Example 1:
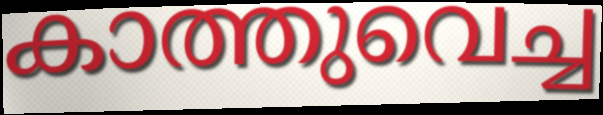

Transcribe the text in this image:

കാത്തുവെച്ച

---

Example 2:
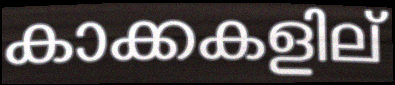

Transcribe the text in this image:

കാക്കകളില്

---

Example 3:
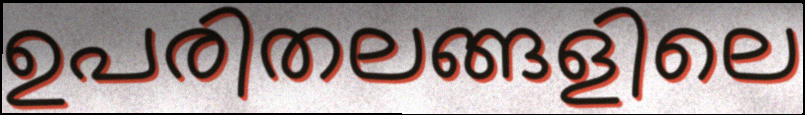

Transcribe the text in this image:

ഉപരിതലങ്ങളിലെ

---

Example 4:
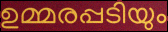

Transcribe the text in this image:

ഉമ്മരപ്പടിയും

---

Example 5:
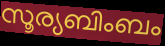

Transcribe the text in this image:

സൂര്യബിംബം